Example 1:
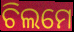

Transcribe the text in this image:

ଚିଲମେ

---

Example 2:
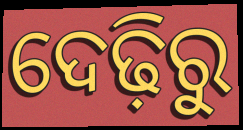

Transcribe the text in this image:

ଦେଢ଼ିରୁ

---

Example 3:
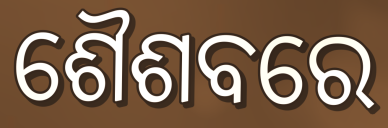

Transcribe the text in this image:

ଶୈଶବରେ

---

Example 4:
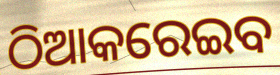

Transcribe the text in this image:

ଠିଆକରେଇବ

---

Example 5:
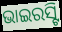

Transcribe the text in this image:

ଭାଇରସ୍ଟି